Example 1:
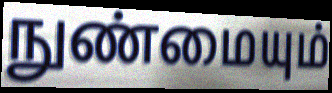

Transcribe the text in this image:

நுண்மையும்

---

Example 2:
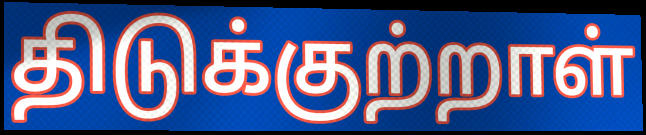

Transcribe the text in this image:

திடுக்குற்றாள்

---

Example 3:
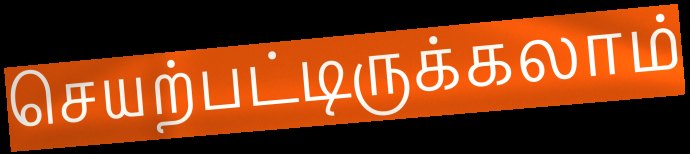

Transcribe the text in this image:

செயற்பட்டிருக்கலாம்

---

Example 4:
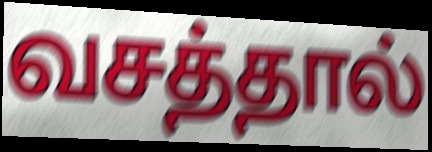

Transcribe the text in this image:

வசத்தால்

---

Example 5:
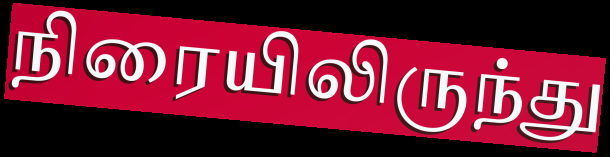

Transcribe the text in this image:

நிரையிலிருந்து